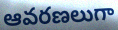
ఆవరణలుగా